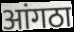
आंगठा